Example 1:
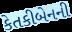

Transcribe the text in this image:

કેતકીબેનની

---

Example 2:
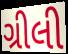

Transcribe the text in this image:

ગ્રીલી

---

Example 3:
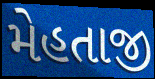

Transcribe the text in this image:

મેહતાજી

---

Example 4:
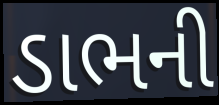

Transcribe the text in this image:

ડાભની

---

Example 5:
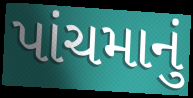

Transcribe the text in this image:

પાંચમાનું